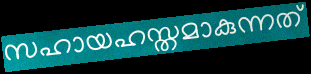
സഹായഹസ്തമാകുന്നത്